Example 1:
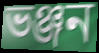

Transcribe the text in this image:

ভঞ্জন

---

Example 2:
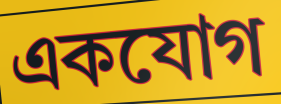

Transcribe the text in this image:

একযোগ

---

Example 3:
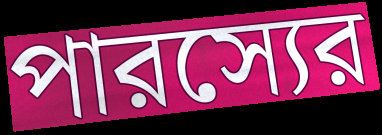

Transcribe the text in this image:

পারস্যের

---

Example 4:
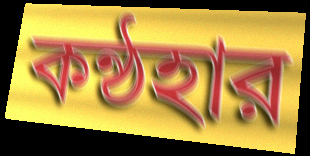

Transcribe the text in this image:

কন্ঠহার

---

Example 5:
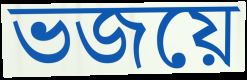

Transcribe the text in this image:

ভজয়ে